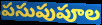
పసుపుపూల